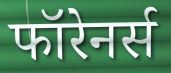
फॉरेनर्स